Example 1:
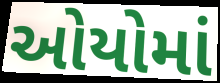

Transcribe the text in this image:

ઓયોમાં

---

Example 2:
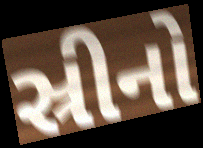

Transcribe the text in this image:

સ્રીનો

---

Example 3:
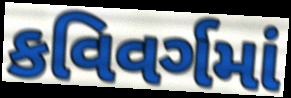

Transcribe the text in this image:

કવિવર્ગમાં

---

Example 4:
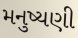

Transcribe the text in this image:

મનુષ્યણી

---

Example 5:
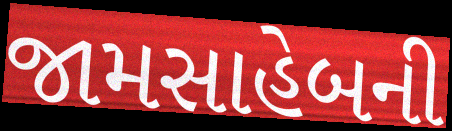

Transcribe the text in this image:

જામસાહેબની